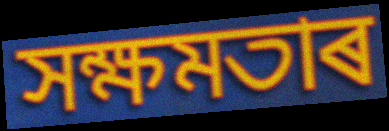
সক্ষমতাৰ